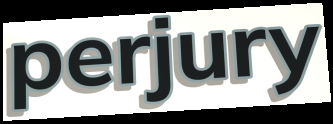
perjury